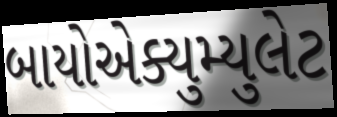
બાયોએક્યુમ્યુલેટ